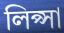
লিপ্সা